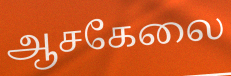
ஆசகேலை